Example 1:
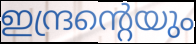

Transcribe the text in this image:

ഇന്ദ്രന്റെയും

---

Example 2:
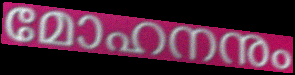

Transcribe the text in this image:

മോഹനനും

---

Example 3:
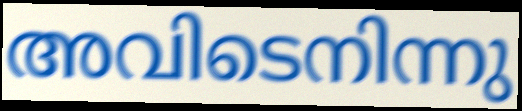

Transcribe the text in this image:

അവിടെനിന്നു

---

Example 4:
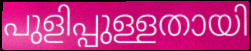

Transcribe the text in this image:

പുളിപ്പുള്ളതായി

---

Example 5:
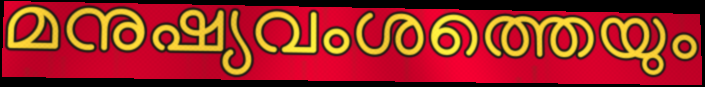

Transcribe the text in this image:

മനുഷ്യവംശത്തെയും